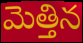
మెత్తిన